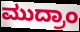
ಮುದ್ರಾಂ